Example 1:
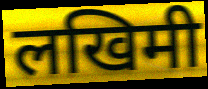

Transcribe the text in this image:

लखिमी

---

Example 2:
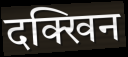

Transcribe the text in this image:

दक्खिन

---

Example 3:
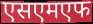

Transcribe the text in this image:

एसएमएफ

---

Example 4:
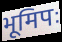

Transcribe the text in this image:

भूमिपः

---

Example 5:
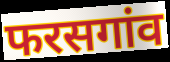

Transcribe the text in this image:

फरसगांव